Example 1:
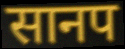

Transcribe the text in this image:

सानप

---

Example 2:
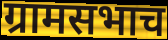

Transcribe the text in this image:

ग्रामसभाच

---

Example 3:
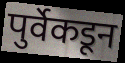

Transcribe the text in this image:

पुर्वेकडून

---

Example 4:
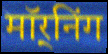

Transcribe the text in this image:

मॉर्निंग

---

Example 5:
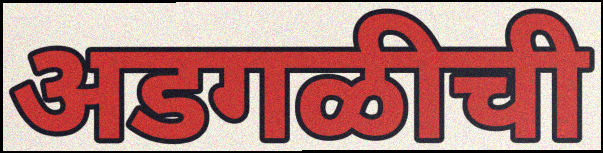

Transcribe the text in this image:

अडगळीची